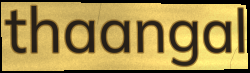
thaangal